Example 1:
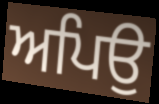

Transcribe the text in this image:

ਅਪਿਉ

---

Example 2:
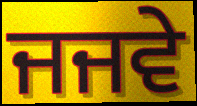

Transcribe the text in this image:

ਜਜਵੇ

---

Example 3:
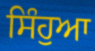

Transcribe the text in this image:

ਸਿੰਹੁਆ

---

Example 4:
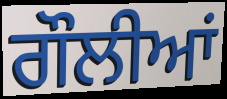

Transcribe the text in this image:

ਗੌਲੀਆਂ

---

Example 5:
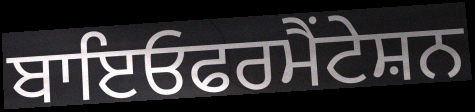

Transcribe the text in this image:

ਬਾਇਓਫਰਮੈਂਟੇਸ਼ਨ